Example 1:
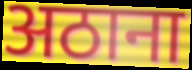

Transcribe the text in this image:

अठाना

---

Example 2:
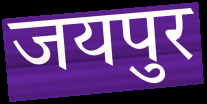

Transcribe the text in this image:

जयपुर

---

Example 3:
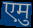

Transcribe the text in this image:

एमु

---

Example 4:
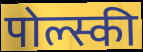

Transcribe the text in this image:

पोल्स्की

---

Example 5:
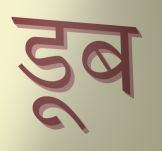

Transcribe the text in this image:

डूब